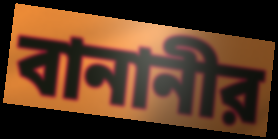
বানানীর